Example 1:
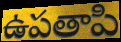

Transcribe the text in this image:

ఉపతాపి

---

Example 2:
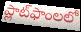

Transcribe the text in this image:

ప్లాట్‌ఫాంలలో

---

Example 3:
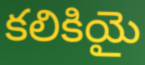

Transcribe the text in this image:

కలికియై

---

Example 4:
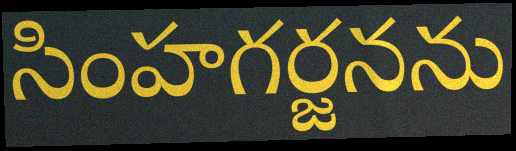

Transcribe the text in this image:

సింహగర్జనను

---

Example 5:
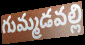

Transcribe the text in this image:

గుమ్మడవల్లి